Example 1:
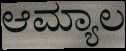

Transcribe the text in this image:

ಆಮ್ಯಾಲ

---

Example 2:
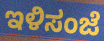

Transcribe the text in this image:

ಇಳಿಸಂಜೆ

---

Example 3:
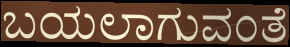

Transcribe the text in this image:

ಬಯಲಾಗುವಂತೆ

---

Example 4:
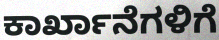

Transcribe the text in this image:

ಕಾರ್ಖಾನೆಗಳಿಗೆ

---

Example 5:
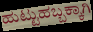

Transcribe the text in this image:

ಹುಟ್ಟುಹಬ್ಬಕ್ಕಾಗಿ